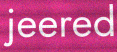
jeered